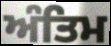
ਅੰਤਿਮ